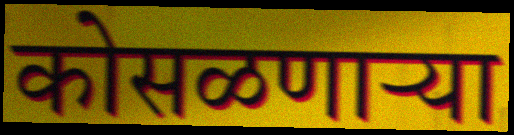
कोसळणाऱ्या